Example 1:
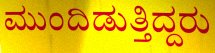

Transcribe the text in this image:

ಮುಂದಿಡುತ್ತಿದ್ದರು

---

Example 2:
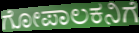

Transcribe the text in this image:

ಗೋಪಾಲಕನಿಗೆ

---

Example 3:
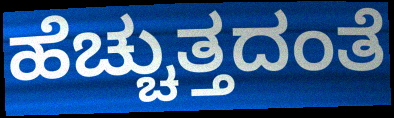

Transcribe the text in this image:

ಹೆಚ್ಚುತ್ತದಂತೆ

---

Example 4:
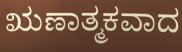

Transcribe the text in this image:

ಋಣಾತ್ಮಕವಾದ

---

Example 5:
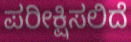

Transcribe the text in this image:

ಪರೀಕ್ಷಿಸಲಿದೆ